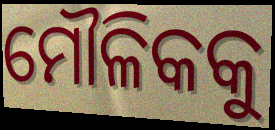
ମୌଳିକକୁ